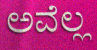
ಅವೆಲ್ಲ